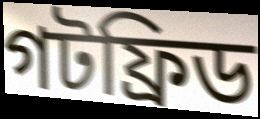
গটফ্রিড